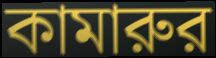
কামারুর